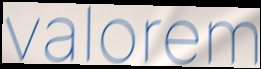
valorem